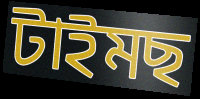
টাইমছ